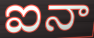
ఐనా